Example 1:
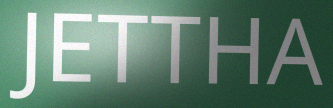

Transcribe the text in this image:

JETTHA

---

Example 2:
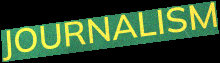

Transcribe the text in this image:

JOURNALISM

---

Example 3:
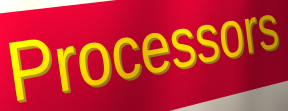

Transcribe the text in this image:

Processors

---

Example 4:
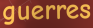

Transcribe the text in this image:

guerres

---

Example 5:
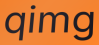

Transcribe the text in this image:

qimg